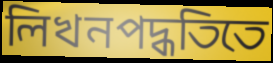
লিখনপদ্ধতিতে